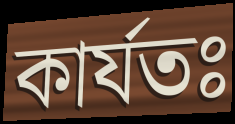
কার্যতঃ